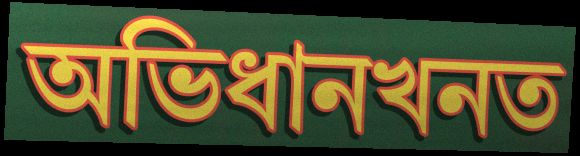
অভিধানখনত